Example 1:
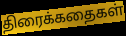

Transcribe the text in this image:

திரைக்கதைகள்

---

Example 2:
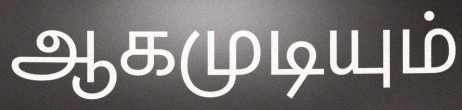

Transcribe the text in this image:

ஆகமுடியும்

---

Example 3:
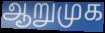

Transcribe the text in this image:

ஆறுமுக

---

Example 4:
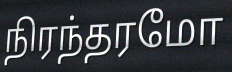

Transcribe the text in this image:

நிரந்தரமோ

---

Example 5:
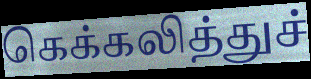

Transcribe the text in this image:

கெக்கலித்துச்